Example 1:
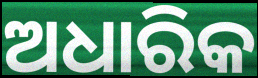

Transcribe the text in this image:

ଅଧାରିକ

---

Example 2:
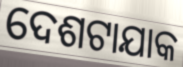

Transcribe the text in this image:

ଦେଶଟାଯାକ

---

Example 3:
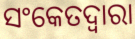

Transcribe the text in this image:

ସଂକେତଦ୍ଵାରା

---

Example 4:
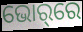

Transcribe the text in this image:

ଭୋର୍‌ରେ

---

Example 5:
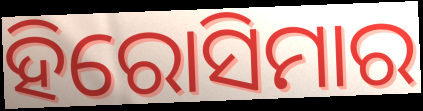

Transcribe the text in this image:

ହିରୋସିମାର